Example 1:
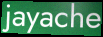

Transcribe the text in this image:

jayache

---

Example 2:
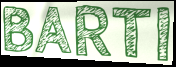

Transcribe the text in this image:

BARTI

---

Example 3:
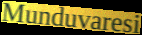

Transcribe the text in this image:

Munduvaresi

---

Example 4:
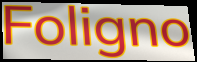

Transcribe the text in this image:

Foligno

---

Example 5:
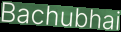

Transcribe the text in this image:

Bachubhai